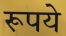
रूपये